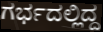
ಗರ್ಭದಲ್ಲಿದ್ದ